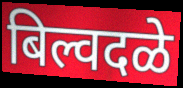
बिल्वदळे